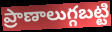
ప్రాణాలుగ్గబట్టి